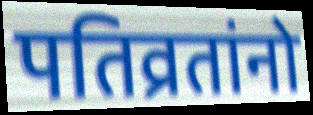
पतिव्रतांनो